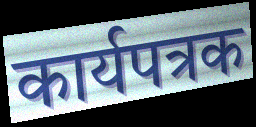
कार्यपत्रक